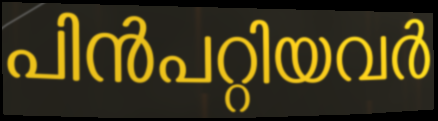
പിൻപറ്റിയവർ